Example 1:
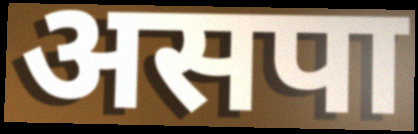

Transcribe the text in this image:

असपा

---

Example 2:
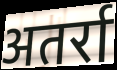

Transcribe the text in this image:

अतर्रा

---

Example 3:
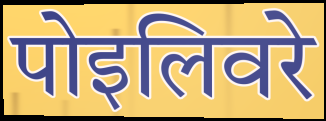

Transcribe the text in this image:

पोइलिवरे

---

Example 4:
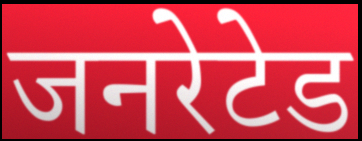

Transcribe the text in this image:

जनरेटेड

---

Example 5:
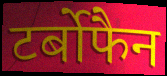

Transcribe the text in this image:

टर्बोफैन